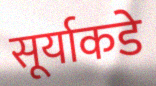
सूर्याकडे